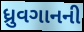
ધ્રુવગાનની